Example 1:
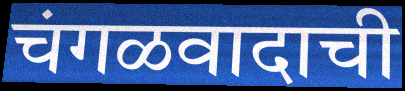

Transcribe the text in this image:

चंगळवादाची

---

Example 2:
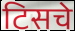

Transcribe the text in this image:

टिसचे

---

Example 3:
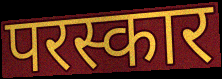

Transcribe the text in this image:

परस्कार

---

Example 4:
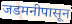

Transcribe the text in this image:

जडमनीपासून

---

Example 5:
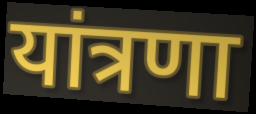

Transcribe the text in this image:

यांत्रणा